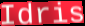
Idris